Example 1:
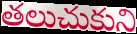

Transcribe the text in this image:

తలుచుకుని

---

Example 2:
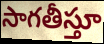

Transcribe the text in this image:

సాగతీస్తూ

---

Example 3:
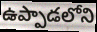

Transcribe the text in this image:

ఉప్పాడలోని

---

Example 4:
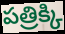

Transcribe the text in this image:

పత్రిక్కి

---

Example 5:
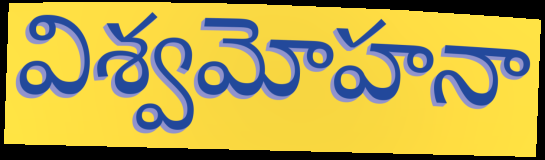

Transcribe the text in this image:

విశ్వమోహనా